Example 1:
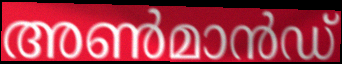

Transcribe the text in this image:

അൺമാൻഡ്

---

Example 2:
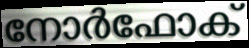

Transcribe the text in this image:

നോർഫോക്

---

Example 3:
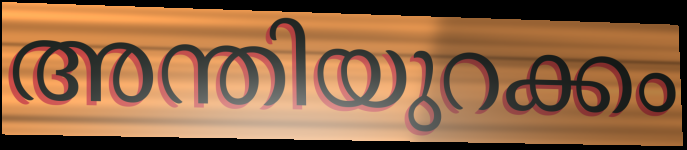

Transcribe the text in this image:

അന്തിയുറക്കം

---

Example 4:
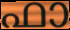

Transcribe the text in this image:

ഫാ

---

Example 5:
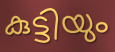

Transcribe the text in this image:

കുട്ടിയും